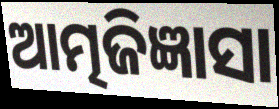
ଆତ୍ମଜିଜ୍ଞାସା